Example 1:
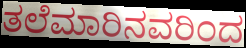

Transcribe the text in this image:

ತಲೆಮಾರಿನವರಿಂದ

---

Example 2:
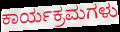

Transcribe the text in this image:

ಕಾರ್ಯಕ್ರಮಗಳು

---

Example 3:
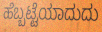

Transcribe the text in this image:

ಹೆಬ್ಬಟ್ಟೆಯಾದುದು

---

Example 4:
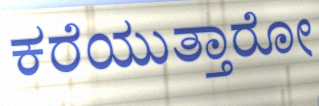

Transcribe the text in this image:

ಕರೆಯುತ್ತಾರೋ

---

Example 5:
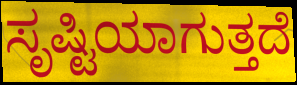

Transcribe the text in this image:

ಸೃಷ್ಟಿಯಾಗುತ್ತದೆ